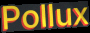
Pollux